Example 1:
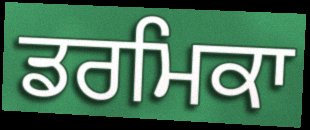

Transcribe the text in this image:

ਡਰਮਿਕਾ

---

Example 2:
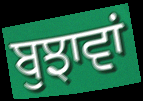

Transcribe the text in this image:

ਬੁਝਾਵਾਂ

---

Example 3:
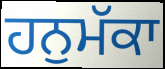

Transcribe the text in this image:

ਹਨੁਮੱਕਾ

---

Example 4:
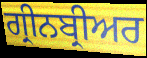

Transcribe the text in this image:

ਗ੍ਰੀਨਬ੍ਰੀਅਰ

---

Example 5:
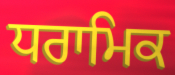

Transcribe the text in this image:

ਧਰਾਮਿਕ